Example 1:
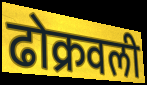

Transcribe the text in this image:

ढोक्रवली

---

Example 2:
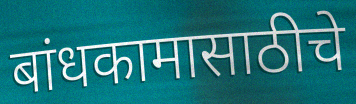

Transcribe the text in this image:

बांधकामासाठीचे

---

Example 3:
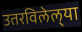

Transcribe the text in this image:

उतरविलेल्या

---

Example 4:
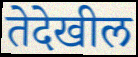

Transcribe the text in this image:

तेदेखील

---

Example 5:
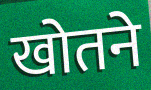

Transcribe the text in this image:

खोतने